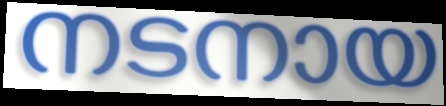
നടനായ